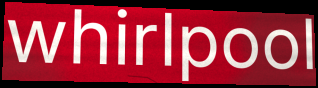
whirlpool